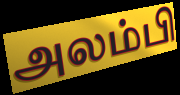
அலம்பி